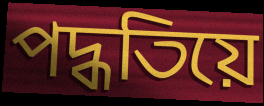
পদ্ধতিয়ে